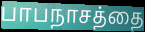
பாபநாசத்தை